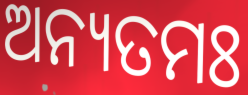
ଅନ୍ୟତମଃ